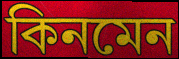
কিনমেন